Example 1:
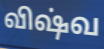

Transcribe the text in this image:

விஷ்வ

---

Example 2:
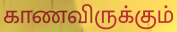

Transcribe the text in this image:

காணவிருக்கும்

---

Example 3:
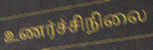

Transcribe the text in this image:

உணர்ச்சிநிலை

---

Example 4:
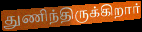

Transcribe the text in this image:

துணிந்திருக்கிறார்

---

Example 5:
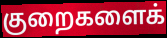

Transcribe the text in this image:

குறைகளைக்